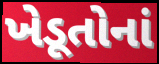
ખેડૂતોનાં